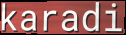
karadi